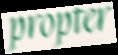
propter